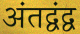
अंतद्वंद्व